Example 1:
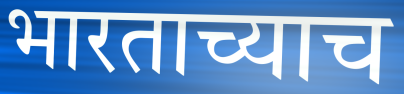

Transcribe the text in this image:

भारताच्याच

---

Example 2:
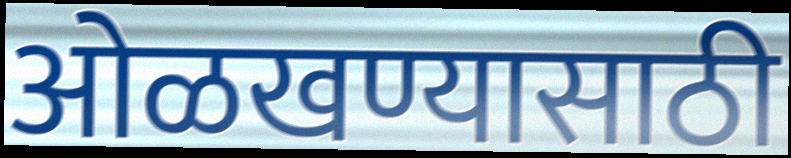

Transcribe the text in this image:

ओळखण्यासाठी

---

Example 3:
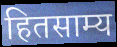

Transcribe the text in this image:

हितसाम्य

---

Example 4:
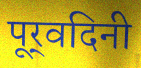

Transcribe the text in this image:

पूर्वदिनी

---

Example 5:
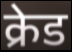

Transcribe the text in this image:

क्रेड